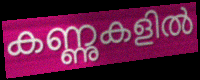
കണ്ണുകളിൽ